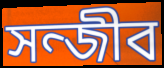
সন্জীব